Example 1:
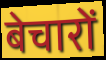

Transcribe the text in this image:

बेचारों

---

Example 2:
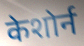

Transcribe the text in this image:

केशोर्न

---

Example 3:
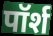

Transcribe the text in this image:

पॉर्श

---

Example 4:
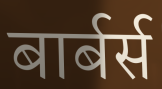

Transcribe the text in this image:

बार्बर्स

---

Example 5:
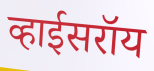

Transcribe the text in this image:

व्हाईसरॉय